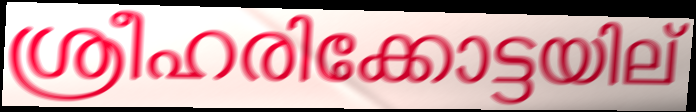
ശ്രീഹരിക്കോട്ടയില്